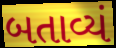
બતાવ્યં